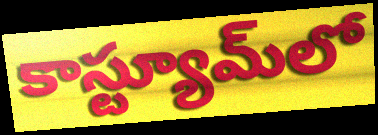
కాస్ట్యూమ్‌లో